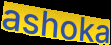
ashoka